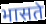
भासते